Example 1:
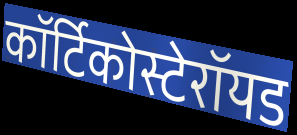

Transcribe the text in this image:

कॉर्टिकोस्टेरॉयड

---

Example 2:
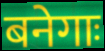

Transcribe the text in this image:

बनेगाः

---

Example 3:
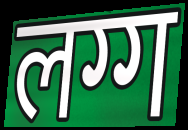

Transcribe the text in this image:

लग्ग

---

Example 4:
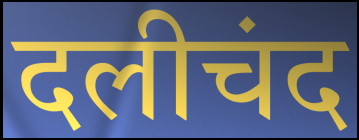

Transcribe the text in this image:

दलीचंद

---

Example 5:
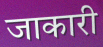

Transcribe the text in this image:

जाकारी